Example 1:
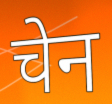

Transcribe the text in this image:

चेन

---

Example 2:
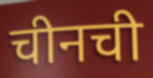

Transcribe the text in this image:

चीनची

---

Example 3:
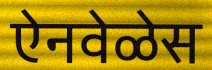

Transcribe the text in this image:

ऐनवेळेस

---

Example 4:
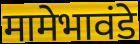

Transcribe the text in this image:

मामेभावंडे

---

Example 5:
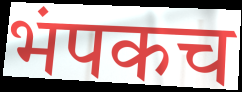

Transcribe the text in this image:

भंपकच